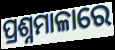
ପ୍ରଶ୍ନମାଳାରେ